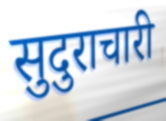
सुदुराचारी